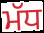
ਮੱਧ